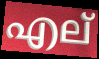
എല്